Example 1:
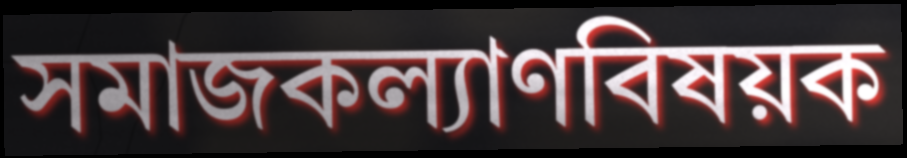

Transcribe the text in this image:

সমাজকল্যাণবিষয়ক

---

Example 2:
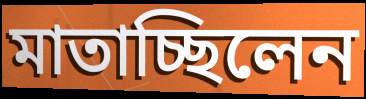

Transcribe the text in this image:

মাতাচ্ছিলেন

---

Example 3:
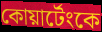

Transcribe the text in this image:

কোয়ার্টেংকে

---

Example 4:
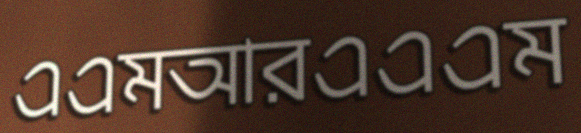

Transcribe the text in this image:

এএমআরএএএম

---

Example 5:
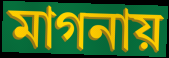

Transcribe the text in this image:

মাগনায়